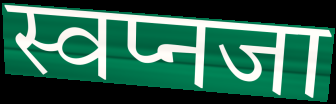
स्वप्नजा